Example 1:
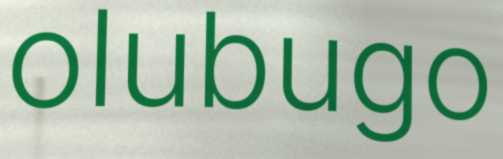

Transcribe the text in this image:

olubugo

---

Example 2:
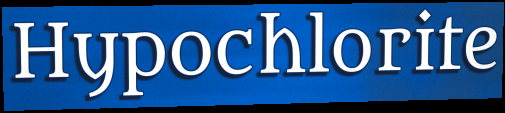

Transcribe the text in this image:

Hypochlorite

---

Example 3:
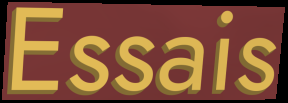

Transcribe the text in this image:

Essais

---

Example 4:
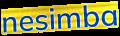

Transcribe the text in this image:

nesimba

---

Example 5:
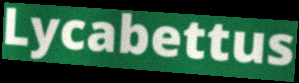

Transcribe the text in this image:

Lycabettus